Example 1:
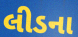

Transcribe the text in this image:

લીડના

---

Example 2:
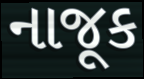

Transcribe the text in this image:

નાજૂક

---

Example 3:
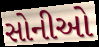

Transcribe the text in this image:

સોનીઓ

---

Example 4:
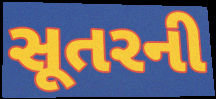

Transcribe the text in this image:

સૂતરની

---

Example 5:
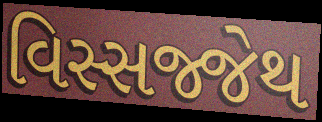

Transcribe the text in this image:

વિસ્સજ્જેથ